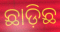
ଛାଡ଼ିଛ